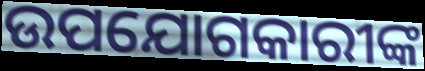
ଉପଯୋଗକାରୀଙ୍କ